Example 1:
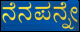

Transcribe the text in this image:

ನೆನಪನ್ನೇ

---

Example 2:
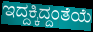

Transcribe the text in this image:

ಇದ್ದಕ್ಕಿದ್ದಂತೆಯೆ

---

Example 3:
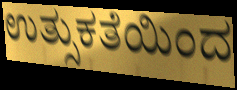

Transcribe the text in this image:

ಉತ್ಸುಕತೆಯಿಂದ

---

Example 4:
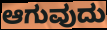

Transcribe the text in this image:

ಆಗುವುದು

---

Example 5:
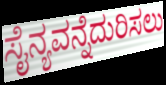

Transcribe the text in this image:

ಸೈನ್ಯವನ್ನೆದುರಿಸಲು